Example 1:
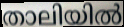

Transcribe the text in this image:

താലിയിൽ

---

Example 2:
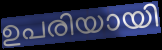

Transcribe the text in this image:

ഉപരിയായി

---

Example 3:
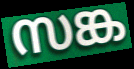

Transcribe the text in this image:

സങ്ക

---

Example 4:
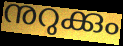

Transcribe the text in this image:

നുറുക്കും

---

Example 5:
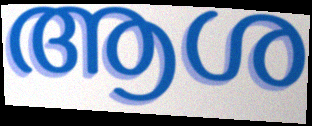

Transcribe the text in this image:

ആശ